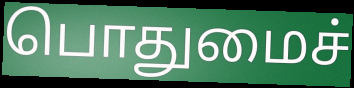
பொதுமைச்